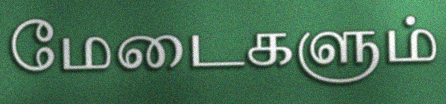
மேடைகளும்